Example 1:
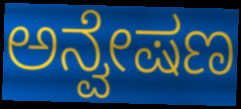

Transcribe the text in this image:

ಅನ್ವೇಷಣ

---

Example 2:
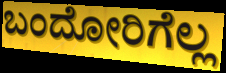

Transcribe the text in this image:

ಬಂದೋರಿಗೆಲ್ಲ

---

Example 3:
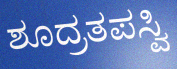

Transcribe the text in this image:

ಶೂದ್ರತಪಸ್ವಿ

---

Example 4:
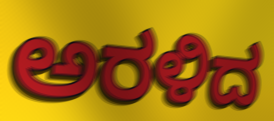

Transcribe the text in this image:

ಅರಳಿದ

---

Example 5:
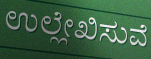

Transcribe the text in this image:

ಉಲ್ಲೇಖಿಸುವೆ